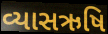
વ્યાસઋષિ